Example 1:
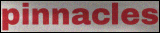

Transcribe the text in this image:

pinnacles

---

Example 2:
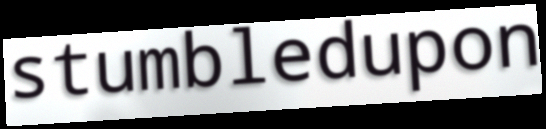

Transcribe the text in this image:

stumbledupon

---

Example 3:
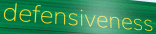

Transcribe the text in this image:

defensiveness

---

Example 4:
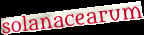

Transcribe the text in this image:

solanacearum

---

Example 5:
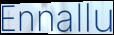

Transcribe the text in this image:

Ennallu